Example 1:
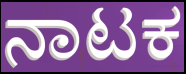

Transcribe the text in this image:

ನಾಟಕ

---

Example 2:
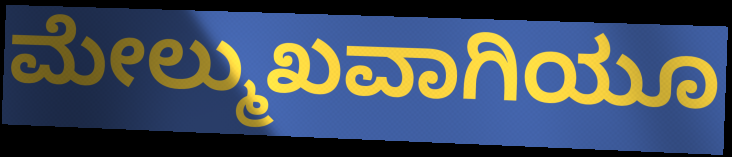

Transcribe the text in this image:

ಮೇಲ್ಮುಖವಾಗಿಯೂ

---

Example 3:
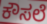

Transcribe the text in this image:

ಕೌಸಲೆ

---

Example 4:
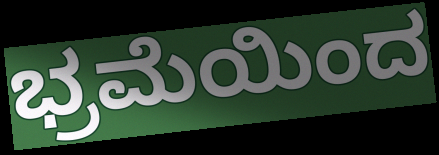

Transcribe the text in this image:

ಭ್ರಮೆಯಿಂದ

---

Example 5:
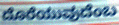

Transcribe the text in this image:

ದೊರೆಯುವುದೆಂಬ